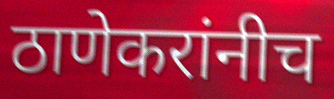
ठाणेकरांनीच